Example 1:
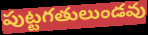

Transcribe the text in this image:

పుట్టగతులుండవు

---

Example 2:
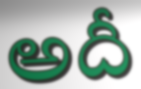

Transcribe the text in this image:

అదీ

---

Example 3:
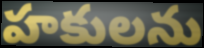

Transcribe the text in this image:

హకులను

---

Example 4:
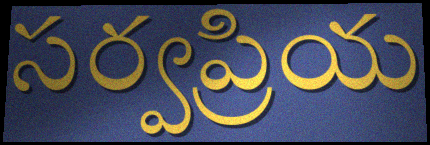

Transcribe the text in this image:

సర్వప్రియ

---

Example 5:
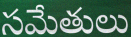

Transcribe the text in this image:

సమేతులు